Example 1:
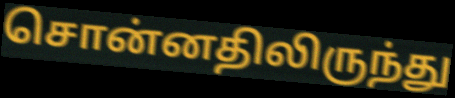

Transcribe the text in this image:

சொன்னதிலிருந்து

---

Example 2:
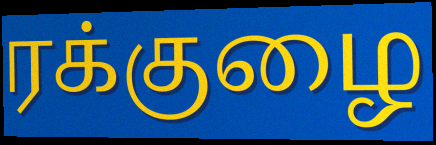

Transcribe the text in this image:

ரக்குழை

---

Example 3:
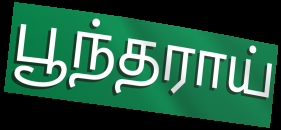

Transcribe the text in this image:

பூந்தராய்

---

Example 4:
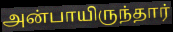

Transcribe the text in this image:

அன்பாயிருந்தார்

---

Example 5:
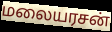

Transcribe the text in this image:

மலையரசன்